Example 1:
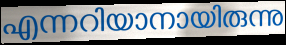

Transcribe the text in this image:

എന്നറിയാനായിരുന്നു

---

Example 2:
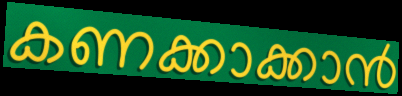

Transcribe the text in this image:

കണക്കാക്കാൻ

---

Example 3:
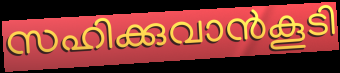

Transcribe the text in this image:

സഹിക്കുവാൻകൂടി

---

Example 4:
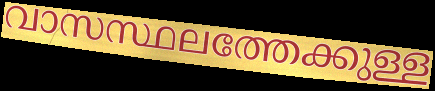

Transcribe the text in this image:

വാസസ്ഥലത്തേക്കുള്ള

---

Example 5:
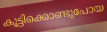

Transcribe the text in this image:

കൂട്ടിക്കൊണ്ടുപോയ